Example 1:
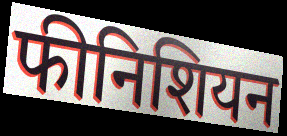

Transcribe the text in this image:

फीनिशियन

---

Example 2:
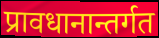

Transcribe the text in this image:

प्रावधानान्तर्गत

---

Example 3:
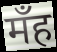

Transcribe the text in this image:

मँह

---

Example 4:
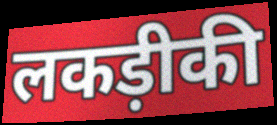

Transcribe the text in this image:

लकड़ीकी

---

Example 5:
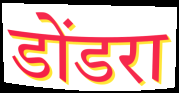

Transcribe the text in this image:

डोंडरा